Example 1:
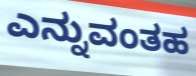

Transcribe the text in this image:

ಎನ್ನುವಂತಹ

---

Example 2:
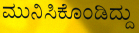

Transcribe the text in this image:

ಮುನಿಸಿಕೊಂಡಿದ್ದು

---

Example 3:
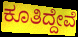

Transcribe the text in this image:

ಕೂತಿದ್ದೇವೆ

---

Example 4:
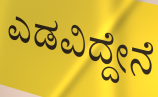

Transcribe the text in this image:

ಎಡವಿದ್ದೇನೆ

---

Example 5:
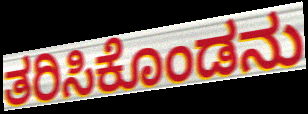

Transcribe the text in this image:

ತರಿಸಿಕೊಂಡನು